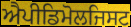
ਐਪੀਡਿਮੋਲਜਿਸਟ